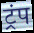
ट्रंप